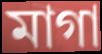
মাগা